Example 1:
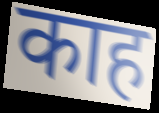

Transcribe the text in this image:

काह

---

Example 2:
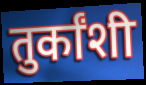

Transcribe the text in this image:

तुर्कांशी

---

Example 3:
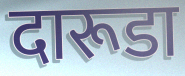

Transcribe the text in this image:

दारूडा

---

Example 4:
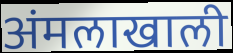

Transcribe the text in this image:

अंमलाखाली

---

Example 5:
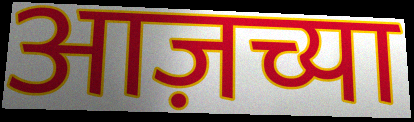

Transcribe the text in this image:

आज़च्या